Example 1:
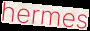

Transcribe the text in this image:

hermes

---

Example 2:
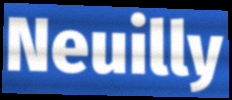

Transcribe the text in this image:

Neuilly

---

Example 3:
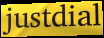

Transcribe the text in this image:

justdial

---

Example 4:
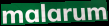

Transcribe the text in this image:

malarum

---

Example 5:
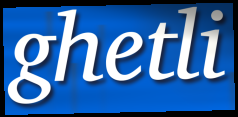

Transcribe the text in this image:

ghetli